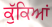
ਕੁੱਕਿਆਂ